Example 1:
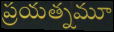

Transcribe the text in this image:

ప్రయత్నమూ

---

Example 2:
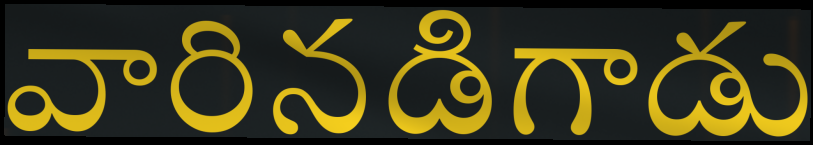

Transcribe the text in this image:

వారినడిగాడు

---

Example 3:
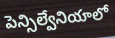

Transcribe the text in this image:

పెన్సిల్వేనియాలో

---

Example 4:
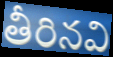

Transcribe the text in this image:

తీరినవి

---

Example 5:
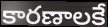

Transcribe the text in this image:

కారణాలకే